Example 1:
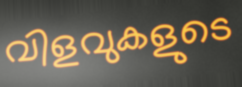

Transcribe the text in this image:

വിളവുകളുടെ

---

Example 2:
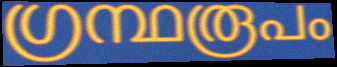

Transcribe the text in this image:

ഗ്രന്ഥരൂപം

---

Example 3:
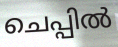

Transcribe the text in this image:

ചെപ്പിൽ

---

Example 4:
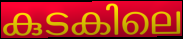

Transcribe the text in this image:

കുടകിലെ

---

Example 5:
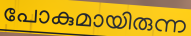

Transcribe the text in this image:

പോകുമായിരുന്ന